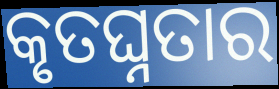
କୃତଘ୍ନତାର